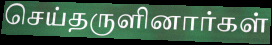
செய்தருளினார்கள்